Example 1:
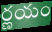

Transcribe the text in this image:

ర్ణయం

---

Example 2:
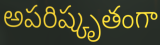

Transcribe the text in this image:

అపరిష్కృతంగా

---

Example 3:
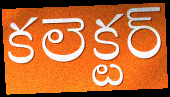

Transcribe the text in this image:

కలెక్టర్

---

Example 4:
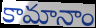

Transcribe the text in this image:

కామానాం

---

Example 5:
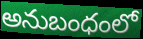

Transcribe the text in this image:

అనుబంధంలో